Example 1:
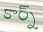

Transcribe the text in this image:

కార్న్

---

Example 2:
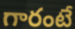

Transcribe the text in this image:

గారంటే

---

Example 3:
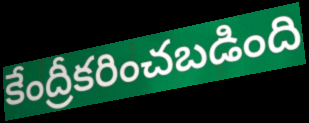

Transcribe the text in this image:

కేంద్రీకరించబడింది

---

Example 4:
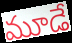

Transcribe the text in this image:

మూడే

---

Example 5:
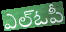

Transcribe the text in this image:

ఎల్ఓపీ